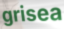
grisea